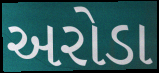
અરોડા